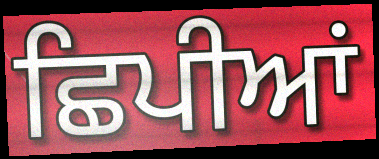
ਛਿਪੀਆਂ